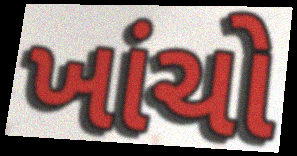
ખાંચો